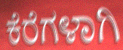
ಕೆರೆಗಳಾಗಿ